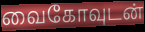
வைகோவுடன்